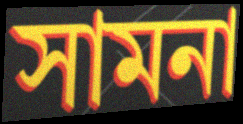
সামনা